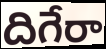
దిగేరా